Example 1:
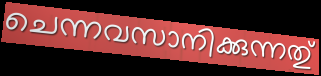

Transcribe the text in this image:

ചെന്നവസാനിക്കുന്നതു്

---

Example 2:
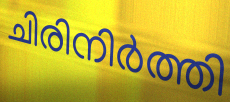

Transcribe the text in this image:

ചിരിനിർത്തി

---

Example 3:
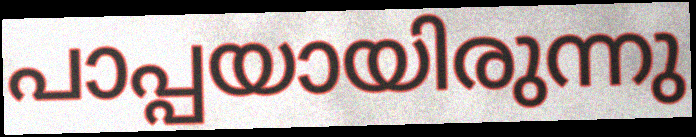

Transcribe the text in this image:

പാപ്പയായിരുന്നു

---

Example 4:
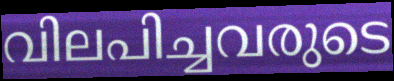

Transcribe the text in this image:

വിലപിച്ചവരുടെ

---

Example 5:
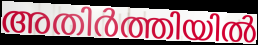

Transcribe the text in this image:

അതിർത്തിയിൽ